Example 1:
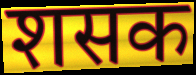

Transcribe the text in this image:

शसक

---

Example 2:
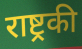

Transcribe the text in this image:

राष्ट्रकी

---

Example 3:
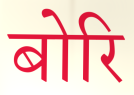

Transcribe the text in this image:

बोरि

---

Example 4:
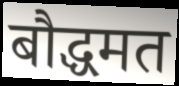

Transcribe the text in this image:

बौद्धमत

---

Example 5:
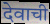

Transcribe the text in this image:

देवाची